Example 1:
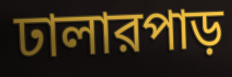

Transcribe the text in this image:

ঢালারপাড়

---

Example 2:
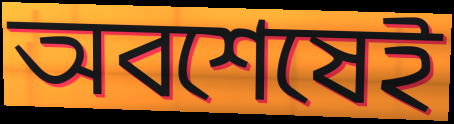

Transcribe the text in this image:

অবশেষেই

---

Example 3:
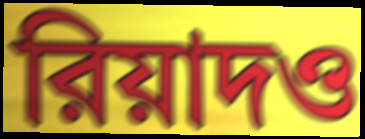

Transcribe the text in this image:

রিয়াদও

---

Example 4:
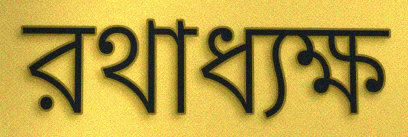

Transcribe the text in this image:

রথাধ্যক্ষ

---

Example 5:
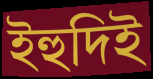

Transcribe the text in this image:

ইহুদিই